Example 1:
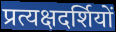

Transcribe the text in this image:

प्रत्यक्षदर्शियों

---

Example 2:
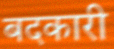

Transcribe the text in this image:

बदकारी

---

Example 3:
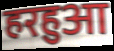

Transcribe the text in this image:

हरहुआ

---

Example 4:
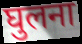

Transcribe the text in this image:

घुलना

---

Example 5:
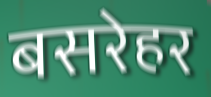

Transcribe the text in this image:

बसरेहर